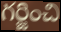
గర్జించి